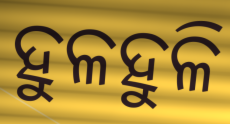
ହୁଳହୁଳି